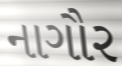
નાગૌર